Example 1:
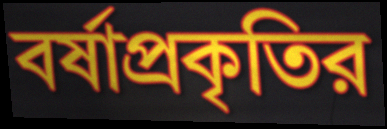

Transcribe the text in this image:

বর্ষাপ্রকৃতির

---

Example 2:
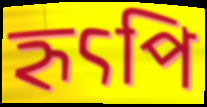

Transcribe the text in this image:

হৃৎপি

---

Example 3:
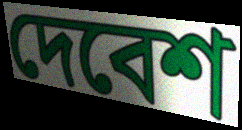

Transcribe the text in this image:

দেবেশ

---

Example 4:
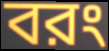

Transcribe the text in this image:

বরং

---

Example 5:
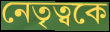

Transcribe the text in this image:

নেতৃত্বকে